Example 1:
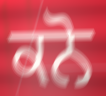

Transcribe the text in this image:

ਕਨੋ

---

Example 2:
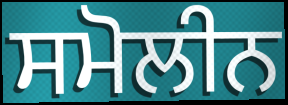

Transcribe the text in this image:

ਸਮੋਲੀਨ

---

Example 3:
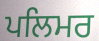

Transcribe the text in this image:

ਪਲਿਮਰ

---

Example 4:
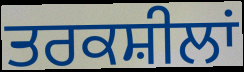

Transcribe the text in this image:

ਤਰਕਸ਼ੀਲਾਂ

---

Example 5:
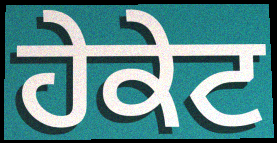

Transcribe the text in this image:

ਹੇਕੇਟ